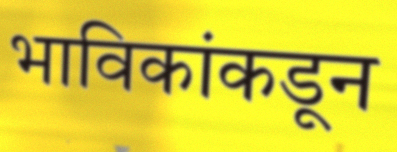
भाविकांकडून